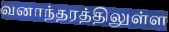
வனாந்தரத்திலுள்ள